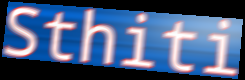
Sthiti